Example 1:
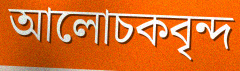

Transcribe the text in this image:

আলোচকবৃন্দ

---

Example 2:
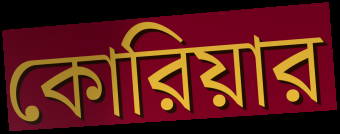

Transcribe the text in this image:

কোরিয়ার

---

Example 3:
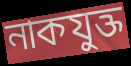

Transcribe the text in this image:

নাকযুক্ত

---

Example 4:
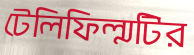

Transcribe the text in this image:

টেলিফিল্মটির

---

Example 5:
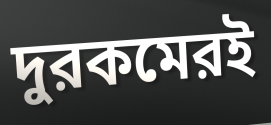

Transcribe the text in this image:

দুরকমেরই